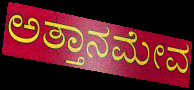
ಅತ್ತಾನಮೇವ